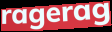
ragerag